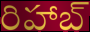
రిహాబ్